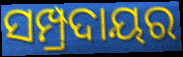
ସମ୍ପ୍ରଦାୟର